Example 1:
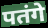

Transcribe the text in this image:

पतंगे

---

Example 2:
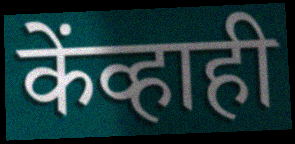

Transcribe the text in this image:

केंव्हाही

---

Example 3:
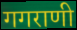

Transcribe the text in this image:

गगराणी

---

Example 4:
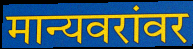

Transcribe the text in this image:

मान्यवरांवर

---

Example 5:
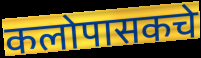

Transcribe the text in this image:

कलोपासकचे